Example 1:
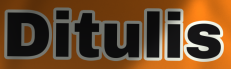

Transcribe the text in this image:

Ditulis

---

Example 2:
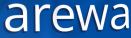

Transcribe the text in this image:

arewa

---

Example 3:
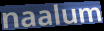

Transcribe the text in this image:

naalum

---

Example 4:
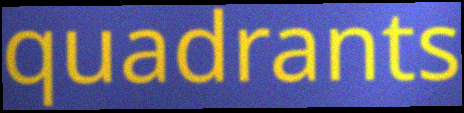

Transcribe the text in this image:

quadrants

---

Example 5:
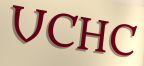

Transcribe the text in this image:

UCHC